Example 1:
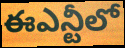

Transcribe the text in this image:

ఈఎన్టీలో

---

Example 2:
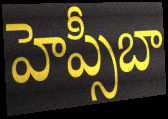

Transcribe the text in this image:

హెప్సీబా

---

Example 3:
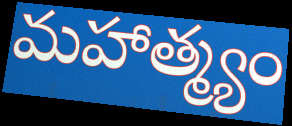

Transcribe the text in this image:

మహాత్మ్యం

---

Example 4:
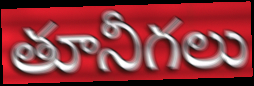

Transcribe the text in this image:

తూనీగలు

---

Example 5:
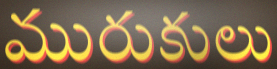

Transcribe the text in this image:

మురుకులు